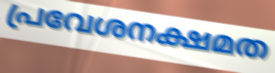
പ്രവേശനക്ഷമത